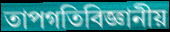
তাপগতিবিজ্ঞানীয়